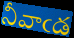
నీవాఁడ